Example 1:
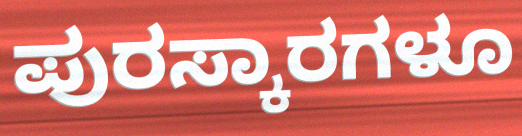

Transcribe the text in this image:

ಪುರಸ್ಕಾರಗಳೂ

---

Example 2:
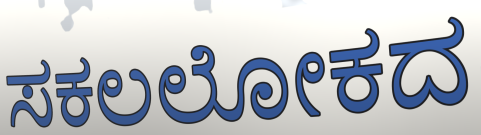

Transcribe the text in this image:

ಸಕಲಲೋಕದ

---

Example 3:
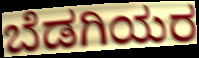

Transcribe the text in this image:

ಬೆಡಗಿಯರ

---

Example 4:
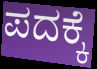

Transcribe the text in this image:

ಪದಕ್ಕೆ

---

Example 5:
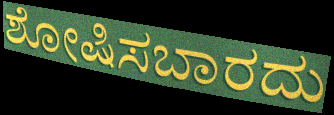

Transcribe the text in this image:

ಶೋಷಿಸಬಾರದು